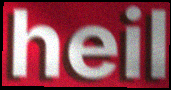
heil